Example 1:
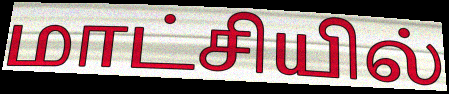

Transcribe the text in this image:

மாட்சியில்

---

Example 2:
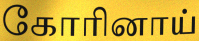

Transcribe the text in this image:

கோரினாய்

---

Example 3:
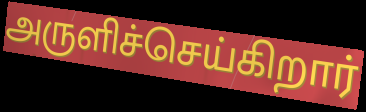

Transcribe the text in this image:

அருளிச்செய்கிறார்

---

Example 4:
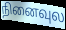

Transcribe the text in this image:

நினைவுல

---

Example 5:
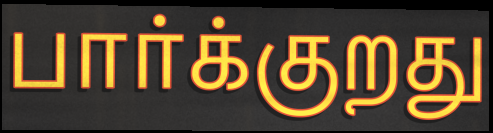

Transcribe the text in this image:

பார்க்குறது